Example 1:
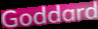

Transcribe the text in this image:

Goddard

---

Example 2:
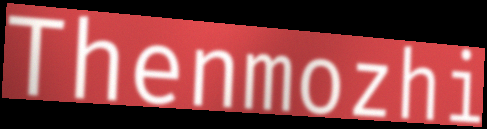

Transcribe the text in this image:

Thenmozhi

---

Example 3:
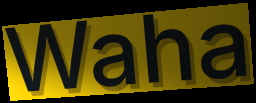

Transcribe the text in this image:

Waha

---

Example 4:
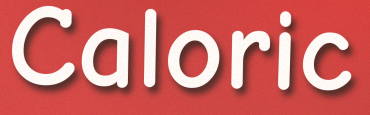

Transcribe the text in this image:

Caloric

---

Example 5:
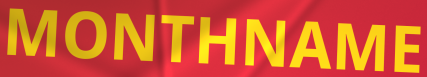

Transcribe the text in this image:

MONTHNAME